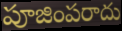
పూజింపరాదు